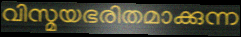
വിസ്മയഭരിതമാക്കുന്ന